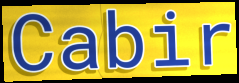
Cabir